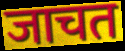
जाचत